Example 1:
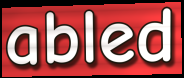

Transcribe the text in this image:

abled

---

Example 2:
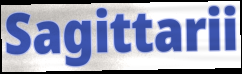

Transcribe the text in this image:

Sagittarii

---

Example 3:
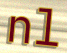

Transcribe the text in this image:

nl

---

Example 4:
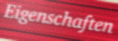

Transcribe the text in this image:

Eigenschaften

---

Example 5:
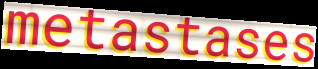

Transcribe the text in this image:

metastases